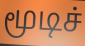
மூடிச்